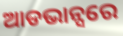
ଆଡଭାନ୍ସରେ